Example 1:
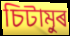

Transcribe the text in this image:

চিটামুৰ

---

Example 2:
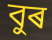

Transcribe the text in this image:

বুৰ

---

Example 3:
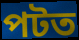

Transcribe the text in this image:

পটত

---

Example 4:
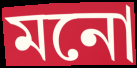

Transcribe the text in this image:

মনো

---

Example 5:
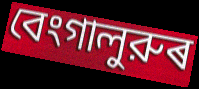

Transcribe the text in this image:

বেংগালুৰুৰ